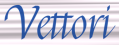
Vettori